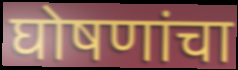
घोषणांचा